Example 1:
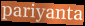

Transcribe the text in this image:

pariyanta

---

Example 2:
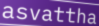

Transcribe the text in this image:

asvattha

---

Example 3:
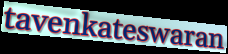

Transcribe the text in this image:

tavenkateswaran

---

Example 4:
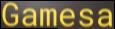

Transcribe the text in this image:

Gamesa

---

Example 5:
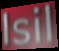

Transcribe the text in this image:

Isil